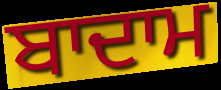
ਬਾਦਾਮ